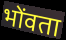
भोंवता